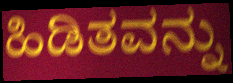
ಹಿಡಿತವನ್ನು